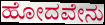
ಹೋದವೇನು